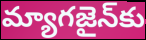
మ్యాగజైన్‌కు